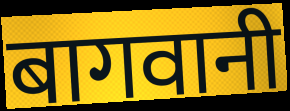
बागवानी